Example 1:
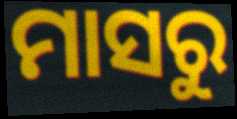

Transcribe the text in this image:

ମାସରୁ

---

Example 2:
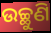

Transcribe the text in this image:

ଉଚ୍ଛୁଣି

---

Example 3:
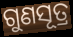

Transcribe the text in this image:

ଗୁଣସୂତ୍ର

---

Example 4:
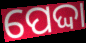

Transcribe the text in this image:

ପେଦ୍ଦା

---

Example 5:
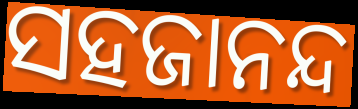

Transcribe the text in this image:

ସହଜାନନ୍ଦ